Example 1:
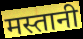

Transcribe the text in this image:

मस्‍तानी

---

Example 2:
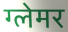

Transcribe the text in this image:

ग्लेमर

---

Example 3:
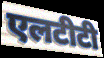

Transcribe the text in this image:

एलटीटी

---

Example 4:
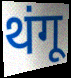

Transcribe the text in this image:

थंगू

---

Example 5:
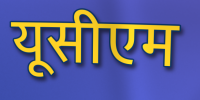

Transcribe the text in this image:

यूसीएम